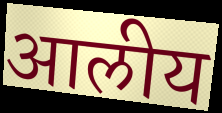
आलीय